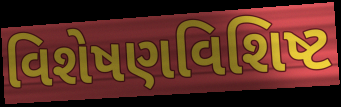
વિશેષણવિશિષ્ટ